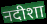
नदीशा